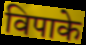
विपाके